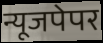
न्‍यूजपेपर